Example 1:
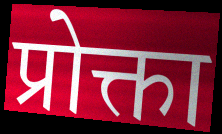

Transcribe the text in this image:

प्रोक्ता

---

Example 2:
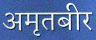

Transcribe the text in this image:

अमृतबीर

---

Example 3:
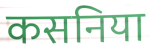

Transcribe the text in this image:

कसनिया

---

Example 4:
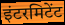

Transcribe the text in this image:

इंटरमिटेंट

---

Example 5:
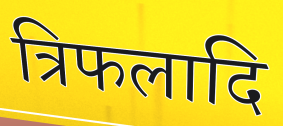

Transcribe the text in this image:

त्रिफलादि